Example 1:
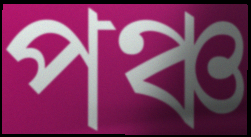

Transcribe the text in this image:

পঞ্চ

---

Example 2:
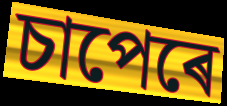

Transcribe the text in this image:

চাপেৰে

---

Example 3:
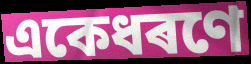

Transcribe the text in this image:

একেধৰণে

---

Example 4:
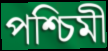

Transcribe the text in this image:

পশ্চিমী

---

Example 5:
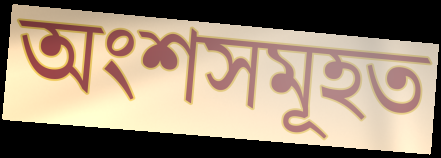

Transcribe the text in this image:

অংশসমূহত